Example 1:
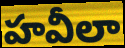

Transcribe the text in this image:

హవీలా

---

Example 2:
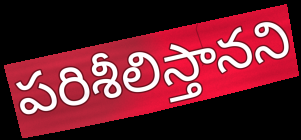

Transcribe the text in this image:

పరిశీలిస్తానని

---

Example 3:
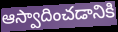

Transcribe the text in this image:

ఆస్వాదించడానికి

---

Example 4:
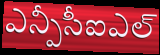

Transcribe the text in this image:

ఎన్పీసీఐఎల్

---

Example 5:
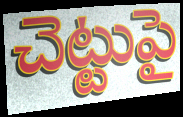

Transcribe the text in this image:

చెట్టుపై